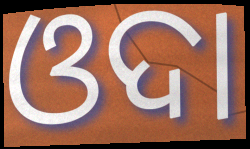
ଓଦା